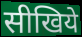
सीखिये